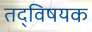
तद्‌विषयक